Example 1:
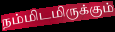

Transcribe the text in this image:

நம்மிடமிருக்கும்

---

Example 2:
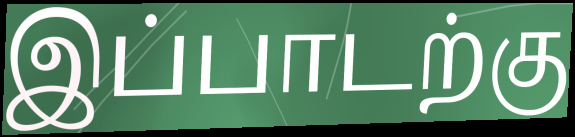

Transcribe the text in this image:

இப்பாடற்கு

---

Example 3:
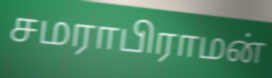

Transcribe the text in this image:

சமராபிராமன்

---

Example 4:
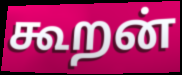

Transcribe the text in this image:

கூறன்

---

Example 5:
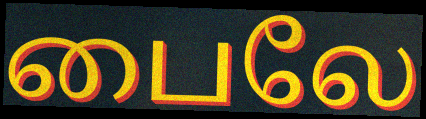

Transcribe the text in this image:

பைலே